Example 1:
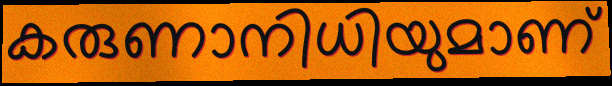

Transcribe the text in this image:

കരുണാനിധിയുമാണ്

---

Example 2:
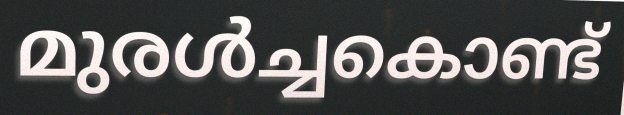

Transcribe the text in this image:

മുരൾച്ചകൊണ്ട്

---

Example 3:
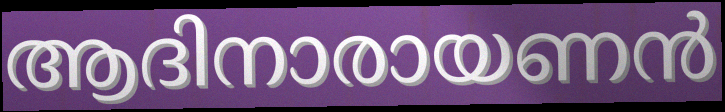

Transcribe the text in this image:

ആദിനാരായണൻ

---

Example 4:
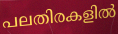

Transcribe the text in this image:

പലതിരകളിൽ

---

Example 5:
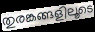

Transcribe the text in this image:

തുരങ്കങ്ങളിലൂടെ